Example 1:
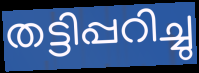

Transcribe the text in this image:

തട്ടിപ്പറിച്ചു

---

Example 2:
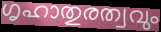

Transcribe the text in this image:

ഗൃഹാതുരത്വവും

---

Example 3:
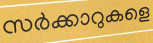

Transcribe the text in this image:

സർക്കാറുകളെ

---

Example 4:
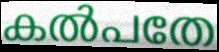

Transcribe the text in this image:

കൽപതേ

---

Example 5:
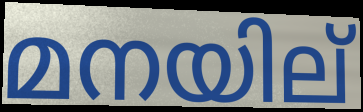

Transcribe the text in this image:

മനയില്